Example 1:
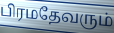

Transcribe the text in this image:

பிரமதேவரும்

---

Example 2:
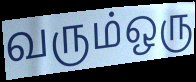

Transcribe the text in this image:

வரும்ஒரு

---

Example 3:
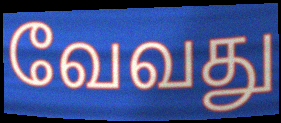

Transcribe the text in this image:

வேவது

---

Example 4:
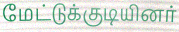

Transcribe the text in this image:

மேட்டுக்குடியினர்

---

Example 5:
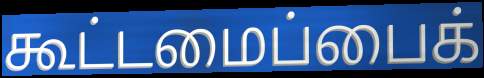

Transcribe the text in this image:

கூட்டமைப்பைக்